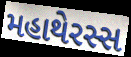
મહાથેરસ્સ